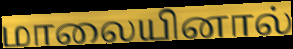
மாலையினால்